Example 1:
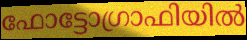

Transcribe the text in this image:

ഫോട്ടോഗ്രാഫിയിൽ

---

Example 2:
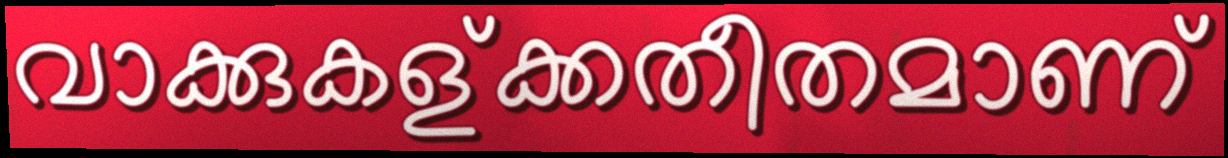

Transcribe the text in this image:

വാക്കുകള്ക്കതീതമാണ്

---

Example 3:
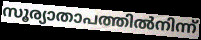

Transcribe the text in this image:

സൂര്യാതാപത്തിൽനിന്ന്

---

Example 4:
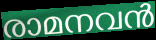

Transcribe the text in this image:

രാമനവൻ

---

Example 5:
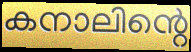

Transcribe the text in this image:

കനാലിന്റെ